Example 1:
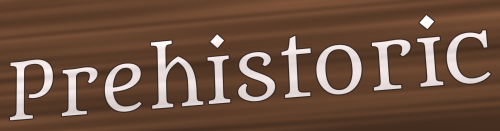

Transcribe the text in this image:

Prehistoric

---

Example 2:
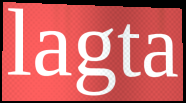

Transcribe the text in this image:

lagta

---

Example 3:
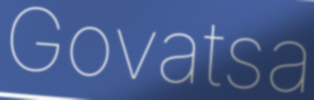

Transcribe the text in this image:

Govatsa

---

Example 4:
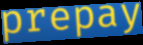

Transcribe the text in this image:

prepay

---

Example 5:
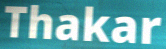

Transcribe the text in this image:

Thakar